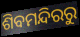
ଶିବମନ୍ଦିରରୁ